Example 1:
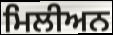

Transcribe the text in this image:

ਮਿਲੀਅਨ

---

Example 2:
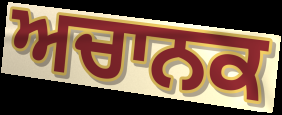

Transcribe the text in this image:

ਅਚਾਨਕ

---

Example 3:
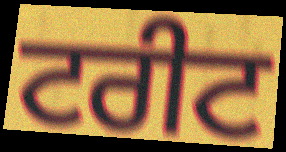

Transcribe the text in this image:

ਟਰੀਟ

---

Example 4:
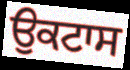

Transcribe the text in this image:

ਉਕਟਾਸ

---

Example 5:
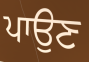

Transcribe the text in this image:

ਪਾਉਣ